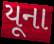
યૂના